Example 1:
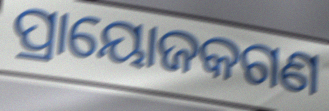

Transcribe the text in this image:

ପ୍ରାୟୋଜକଗଣ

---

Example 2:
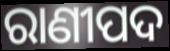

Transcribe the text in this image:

ରାଣୀପଦ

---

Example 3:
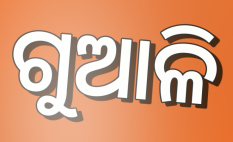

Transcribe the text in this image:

ଗୁଆଳି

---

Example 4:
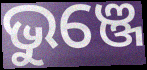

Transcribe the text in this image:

ଭୁଞ୍ଜେ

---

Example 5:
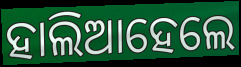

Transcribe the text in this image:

ହାଲିଆହେଲେ